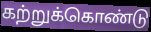
கற்றுக்கொண்டு